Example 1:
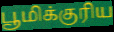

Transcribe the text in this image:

பூமிக்குரிய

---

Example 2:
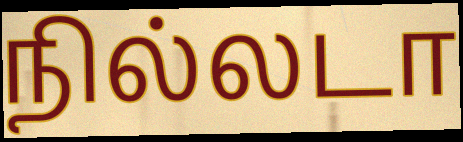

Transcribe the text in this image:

நில்லடா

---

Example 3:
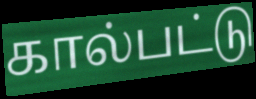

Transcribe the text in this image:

கால்பட்டு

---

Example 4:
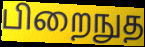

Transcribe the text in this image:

பிறைநுத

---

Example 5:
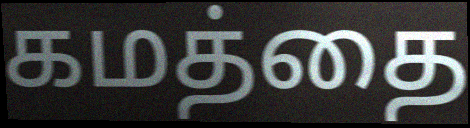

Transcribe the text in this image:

கமத்தை